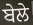
ਬੇਲੇ